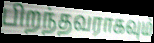
பிறந்தவராகவும்